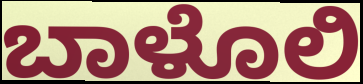
ಬಾಳೊಲಿ